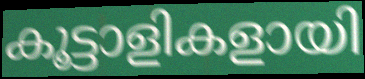
കൂട്ടാളികളായി